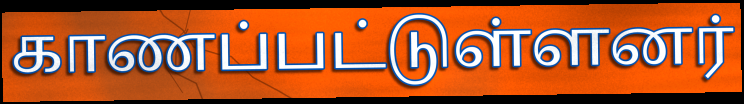
காணப்பட்டுள்ளனர்